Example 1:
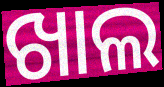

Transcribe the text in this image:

ଖାଲ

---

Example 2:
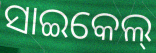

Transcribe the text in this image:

ସାଇକେଲ୍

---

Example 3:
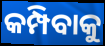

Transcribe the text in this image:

କମ୍ପିବାକୁ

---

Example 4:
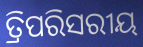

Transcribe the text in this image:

ତ୍ରିପରିସରୀୟ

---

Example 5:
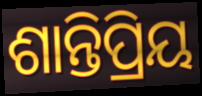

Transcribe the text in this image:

ଶାନ୍ତିପ୍ରିୟ